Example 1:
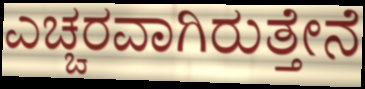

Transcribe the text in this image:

ಎಚ್ಚರವಾಗಿರುತ್ತೇನೆ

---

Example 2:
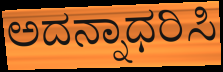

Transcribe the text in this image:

ಅದನ್ನಾಧರಿಸಿ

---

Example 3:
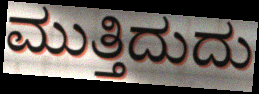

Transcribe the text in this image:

ಮುತ್ತಿದುದು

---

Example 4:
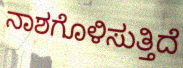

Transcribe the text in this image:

ನಾಶಗೊಳಿಸುತ್ತಿದೆ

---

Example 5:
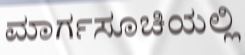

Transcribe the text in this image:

ಮಾರ್ಗಸೂಚಿಯಲ್ಲಿ